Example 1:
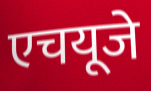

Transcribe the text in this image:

एचयूजे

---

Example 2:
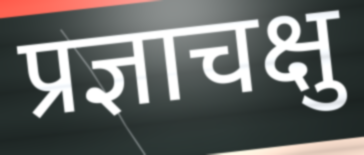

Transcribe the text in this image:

प्रज्ञाचक्षु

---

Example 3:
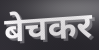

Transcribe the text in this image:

बेचकर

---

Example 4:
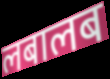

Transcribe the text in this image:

लबालब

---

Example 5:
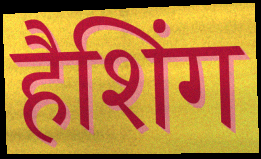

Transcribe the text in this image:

हैशिंग